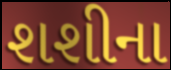
શશીના